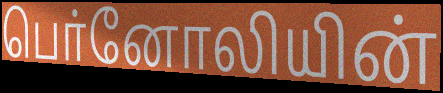
பெர்னோலியின்